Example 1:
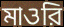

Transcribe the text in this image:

মাওরি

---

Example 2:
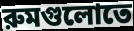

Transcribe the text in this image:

রুমগুলোতে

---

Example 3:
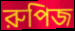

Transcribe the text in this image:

রুপিজ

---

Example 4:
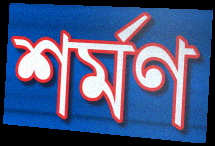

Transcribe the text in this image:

শর্মণ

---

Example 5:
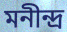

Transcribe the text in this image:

মনীন্দ্র